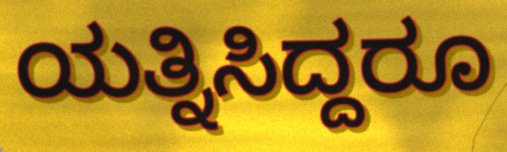
ಯತ್ನಿಸಿದ್ದರೂ